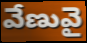
వేణువై